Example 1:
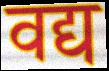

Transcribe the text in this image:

वद्य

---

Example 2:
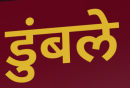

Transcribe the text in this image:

डुंबले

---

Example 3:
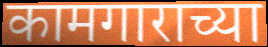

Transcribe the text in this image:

कामगाराच्या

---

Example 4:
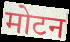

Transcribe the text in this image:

मोटन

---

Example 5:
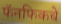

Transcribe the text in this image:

फॅनफिकचे